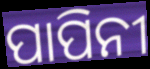
ପାପିନୀ